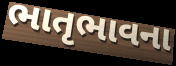
ભાતૃભાવના